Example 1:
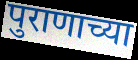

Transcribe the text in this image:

पुराणाच्या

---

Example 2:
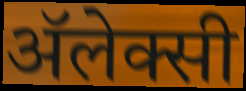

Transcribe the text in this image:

ॲलेक्सी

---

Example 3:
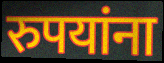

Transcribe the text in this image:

रुपयांना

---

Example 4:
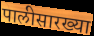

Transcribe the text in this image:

पालीसारख्या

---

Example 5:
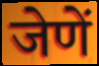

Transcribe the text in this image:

जेणें